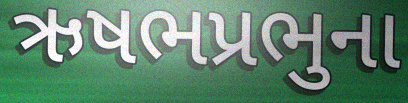
ઋષભપ્રભુના